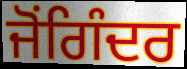
ਜੋਂਗਿੰਦਰ